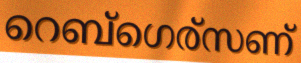
റെബ്ഗെര്സണ്